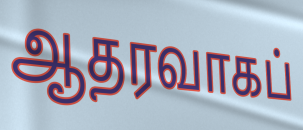
ஆதரவாகப்